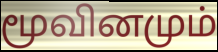
மூவினமும்